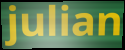
julian